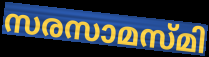
സരസാമസ്മി